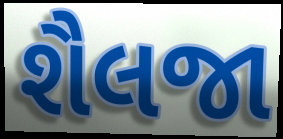
શૈલજા